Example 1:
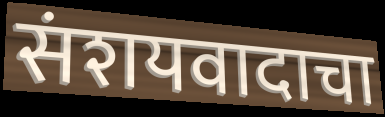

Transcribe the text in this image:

संशयवादाचा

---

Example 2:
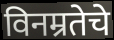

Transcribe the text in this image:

विनम्रतेचे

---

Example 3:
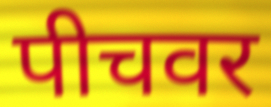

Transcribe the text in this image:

पीचवर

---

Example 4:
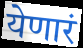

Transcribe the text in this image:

येणारं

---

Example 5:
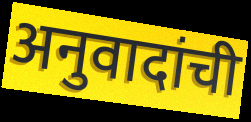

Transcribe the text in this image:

अनुवादांची